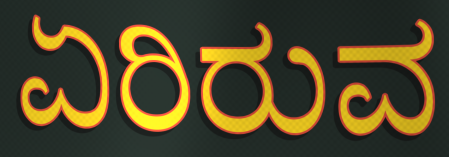
ಏರಿರುವ